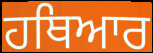
ਹਥਿਆਰ